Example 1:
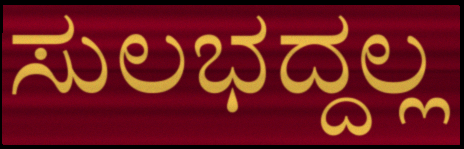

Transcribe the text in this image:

ಸುಲಭದ್ದಲ್ಲ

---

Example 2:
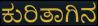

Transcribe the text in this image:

ಕುರಿತಾಗಿನ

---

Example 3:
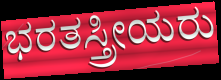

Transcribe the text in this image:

ಭರತಸ್ತ್ರೀಯರು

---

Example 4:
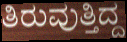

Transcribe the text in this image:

ತಿರುವುತ್ತಿದ್ದ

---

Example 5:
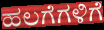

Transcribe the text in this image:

ಹಲಗೆಗಳಿಗೆ